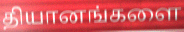
தியானங்களை